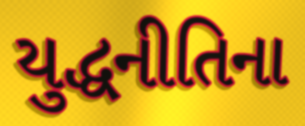
યુદ્ધનીતિના